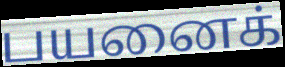
பயனைக்